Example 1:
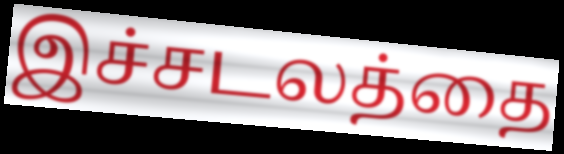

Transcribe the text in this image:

இச்சடலத்தை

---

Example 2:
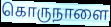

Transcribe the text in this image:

கொருநாளை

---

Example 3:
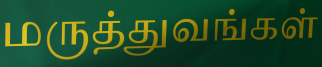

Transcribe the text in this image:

மருத்துவங்கள்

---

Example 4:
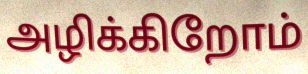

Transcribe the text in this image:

அழிக்கிறோம்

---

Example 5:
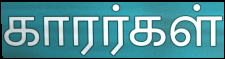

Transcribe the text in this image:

காரர்கள்